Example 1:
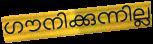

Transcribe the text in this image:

ഗൗനിക്കുന്നില്ല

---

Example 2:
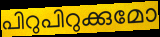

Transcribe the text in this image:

പിറുപിറുക്കുമോ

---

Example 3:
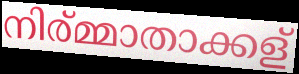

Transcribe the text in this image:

നിര്മ്മാതാക്കള്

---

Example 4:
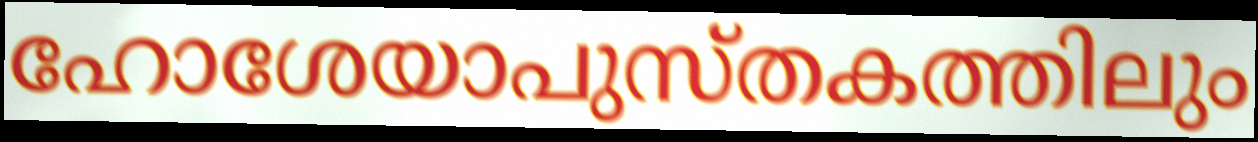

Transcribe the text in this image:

ഹോശേയാപുസ്തകത്തിലും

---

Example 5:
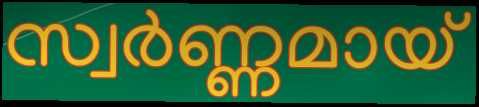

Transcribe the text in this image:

സ്വർണ്ണമായ്